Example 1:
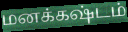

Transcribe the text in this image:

மனக்கஷ்டம்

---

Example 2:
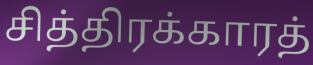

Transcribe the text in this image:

சித்திரக்காரத்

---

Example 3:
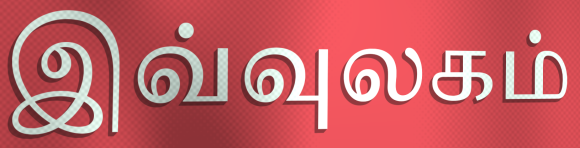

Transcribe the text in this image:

இவ்வுலகம்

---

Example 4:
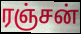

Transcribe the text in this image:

ரஞ்சன்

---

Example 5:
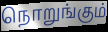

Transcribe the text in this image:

நொறுங்கும்